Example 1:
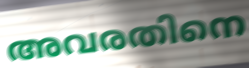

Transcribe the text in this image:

അവരതിനെ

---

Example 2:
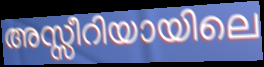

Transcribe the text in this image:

അസ്സീറിയായിലെ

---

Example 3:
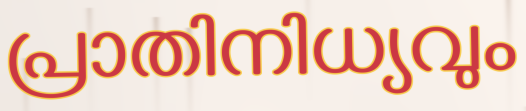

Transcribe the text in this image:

പ്രാതിനിധ്യവും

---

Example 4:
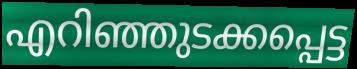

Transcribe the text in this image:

എറിഞ്ഞുടക്കപ്പെട്ട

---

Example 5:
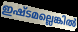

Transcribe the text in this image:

ഇഷ്ടമല്ലെങ്കിൽ